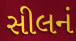
સીલનં